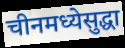
चीनमध्येसुद्धा